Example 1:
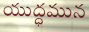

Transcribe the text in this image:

యుద్ధమున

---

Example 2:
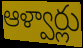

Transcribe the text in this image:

ఆళ్వార్లు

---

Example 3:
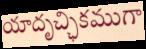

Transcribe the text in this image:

యాదృచ్ఛికముగా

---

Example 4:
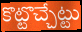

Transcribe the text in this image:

కొట్టొచ్చేట్టు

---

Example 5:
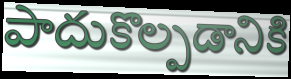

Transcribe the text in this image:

పాదుకొల్పడానికి